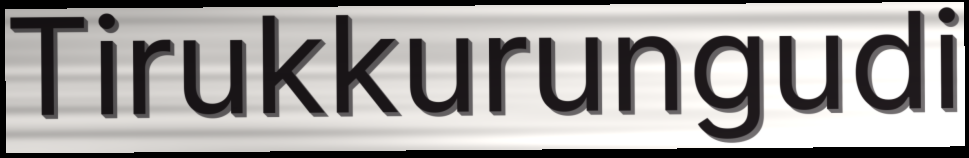
Tirukkurungudi